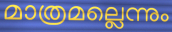
മാത്രമല്ലെന്നും